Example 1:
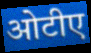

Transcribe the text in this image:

ओटीए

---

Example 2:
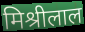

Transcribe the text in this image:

मिश्रीलाल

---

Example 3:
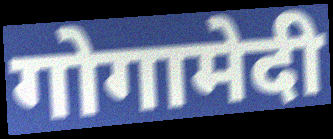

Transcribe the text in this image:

गोगामेदी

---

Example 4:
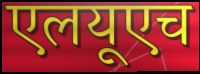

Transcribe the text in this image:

एलयूएच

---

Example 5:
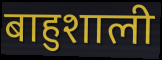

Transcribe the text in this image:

बाहुशाली